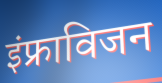
इंफ्राविजन